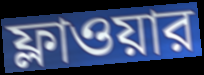
ফ্লাওয়ার